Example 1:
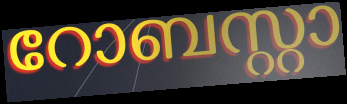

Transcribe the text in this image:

റോബസ്റ്റാ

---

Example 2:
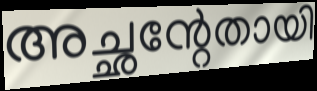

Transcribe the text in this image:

അച്ഛന്റേതായി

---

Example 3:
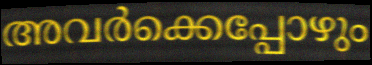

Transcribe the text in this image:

അവർക്കെപ്പോഴും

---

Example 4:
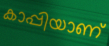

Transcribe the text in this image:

കാപ്പിയാണ്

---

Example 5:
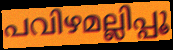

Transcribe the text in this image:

പവിഴമല്ലിപ്പൂ